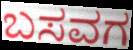
ಬಸವಗ